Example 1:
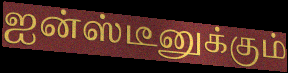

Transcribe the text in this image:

ஐன்ஸ்டீனுக்கும்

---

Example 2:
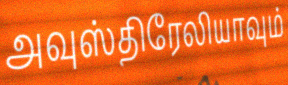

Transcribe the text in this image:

அவுஸ்திரேலியாவும்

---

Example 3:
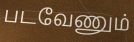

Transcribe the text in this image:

படவேணும்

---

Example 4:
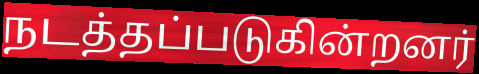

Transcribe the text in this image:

நடத்தப்படுகின்றனர்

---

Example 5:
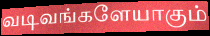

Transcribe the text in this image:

வடிவங்களேயாகும்